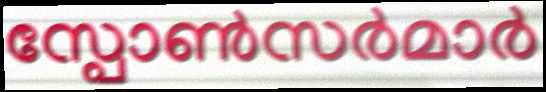
സ്പോൺസർമാർ